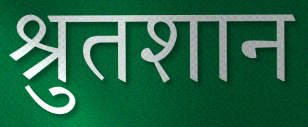
श्रुतशान